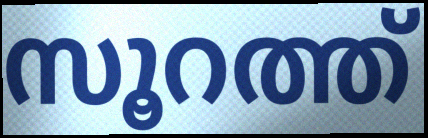
സൂറത്ത്